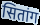
सितांग